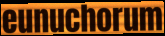
eunuchorum